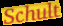
Schult